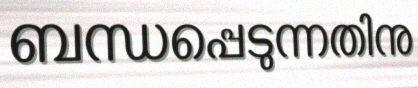
ബന്ധപ്പെടുന്നതിനു